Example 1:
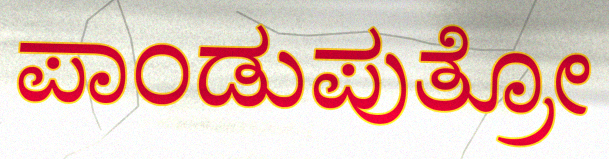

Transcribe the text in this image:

ಪಾಂಡುಪುತ್ರೋ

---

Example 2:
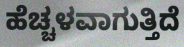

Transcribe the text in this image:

ಹೆಚ್ಚಳವಾಗುತ್ತಿದೆ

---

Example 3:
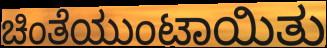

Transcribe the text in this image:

ಚಿಂತೆಯುಂಟಾಯಿತು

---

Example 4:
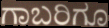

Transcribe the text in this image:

ಗಾಬರಿಗೂ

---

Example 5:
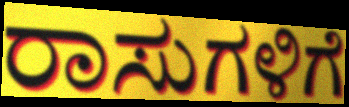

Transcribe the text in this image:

ರಾಸುಗಳಿಗೆ